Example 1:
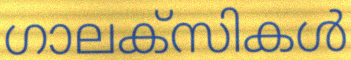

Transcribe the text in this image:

ഗാലക്സികൾ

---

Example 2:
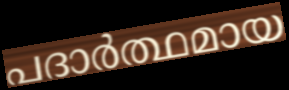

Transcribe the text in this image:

പദാർത്ഥമായ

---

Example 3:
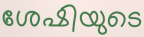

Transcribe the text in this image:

ശേഷിയുടെ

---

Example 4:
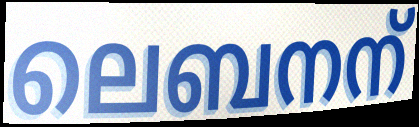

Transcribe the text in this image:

ലെബനന്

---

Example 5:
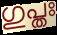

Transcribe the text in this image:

ഗുപ്തഃ